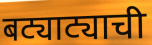
बट्याट्याची